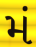
મં